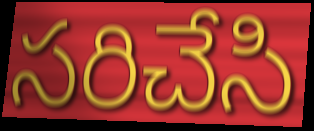
సరిచేసి